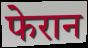
फेरान